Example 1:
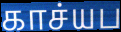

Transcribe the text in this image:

காச்யப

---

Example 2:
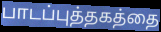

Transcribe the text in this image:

பாடப்புத்தகத்தை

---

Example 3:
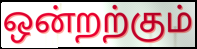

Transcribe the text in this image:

ஒன்றற்கும்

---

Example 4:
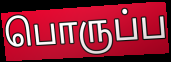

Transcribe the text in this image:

பொருப்ப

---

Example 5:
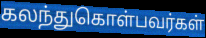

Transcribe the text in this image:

கலந்துகொள்பவர்கள்